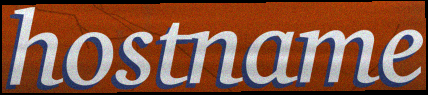
hostname